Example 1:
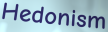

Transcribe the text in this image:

Hedonism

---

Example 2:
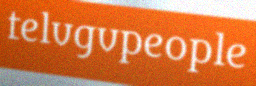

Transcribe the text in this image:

telugupeople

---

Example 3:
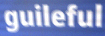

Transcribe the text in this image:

guileful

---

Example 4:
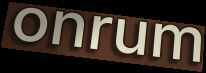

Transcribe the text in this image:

onrum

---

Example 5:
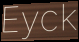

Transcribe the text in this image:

Eyck